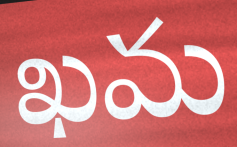
ఖమ